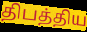
திபத்திய